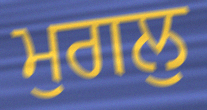
ਮੁਗਲੁ